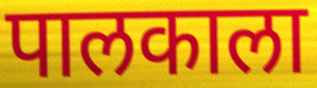
पालकाला